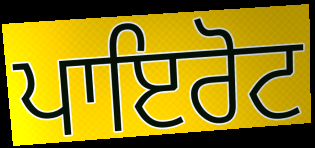
ਪਾਇਰੋਟ